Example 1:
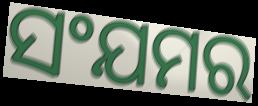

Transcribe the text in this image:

ସଂଯମର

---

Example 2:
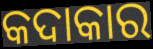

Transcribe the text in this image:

କଦାକାର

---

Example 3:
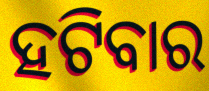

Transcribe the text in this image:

ହଟିବାର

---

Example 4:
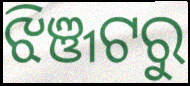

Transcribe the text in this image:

ଝିଞ୍ଜଟରୁ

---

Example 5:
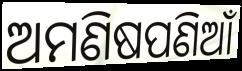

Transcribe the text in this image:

ଅମଣିଷପଣିଆଁ